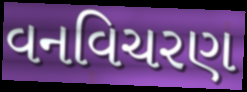
વનવિચરણ